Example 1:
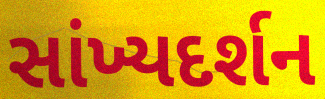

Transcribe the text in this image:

સાંખ્યદર્શન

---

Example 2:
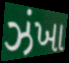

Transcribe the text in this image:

ઝંખા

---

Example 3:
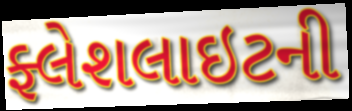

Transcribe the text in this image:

ફ્લેશલાઇટની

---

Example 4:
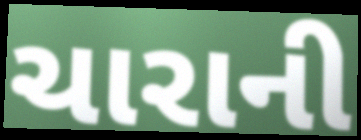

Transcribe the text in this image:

ચારાની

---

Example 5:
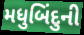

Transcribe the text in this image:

મધુબિંદુની